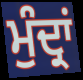
ਮੁੰਦ੍ਰਾਂ